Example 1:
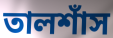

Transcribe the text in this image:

তালশাঁস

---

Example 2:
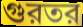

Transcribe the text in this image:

গুরতর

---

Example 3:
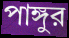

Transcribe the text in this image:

পাঙ্গুর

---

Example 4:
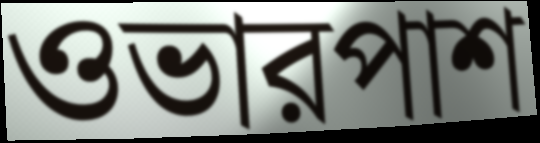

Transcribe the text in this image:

ওভারপাশ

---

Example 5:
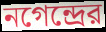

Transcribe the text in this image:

নগেন্দ্রের